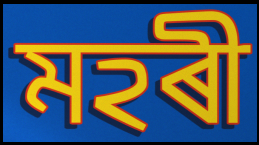
মহৰী